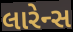
લારેન્સ